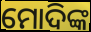
ମୋଦିଙ୍କ